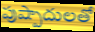
పుష్పాదులతో